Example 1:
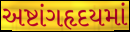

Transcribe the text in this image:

અષ્ટાંગહૃદયમાં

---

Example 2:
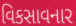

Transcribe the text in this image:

વિકસાવનાર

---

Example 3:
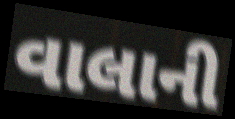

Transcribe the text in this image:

વાલાની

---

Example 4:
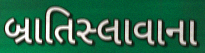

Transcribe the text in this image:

બ્રાતિસ્લાવાના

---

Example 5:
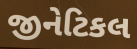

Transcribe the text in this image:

જીનેટિકલ